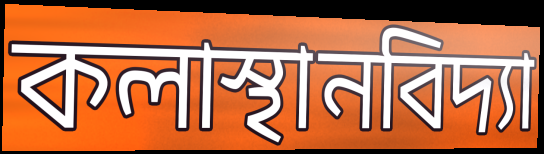
কলাস্থানবিদ্যা